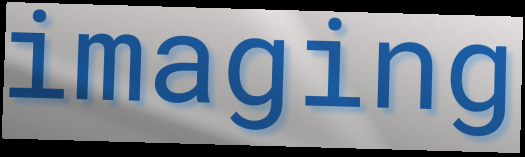
imaging